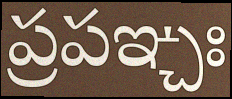
ప్రపఞ్చః